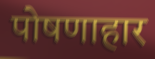
पोषणाहार